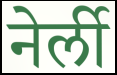
नेर्ली